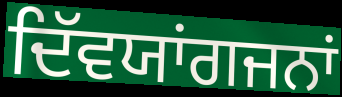
ਦਿੱਵਯਾਂਗਜਨਾਂ